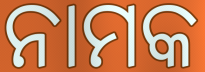
ନାମକ